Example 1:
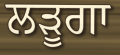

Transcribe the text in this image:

ਲੜੂਗਾ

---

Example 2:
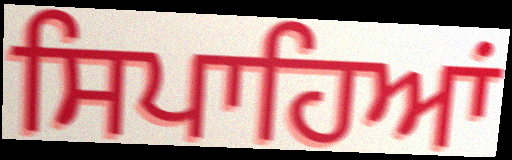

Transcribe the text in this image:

ਸਿਪਾਹਿਆਂ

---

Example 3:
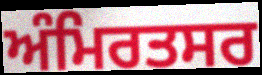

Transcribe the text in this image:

ਅੰਮਿਰਤਸਰ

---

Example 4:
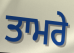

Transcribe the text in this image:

ਤਾਮਰੇ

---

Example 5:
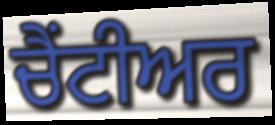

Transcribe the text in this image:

ਚੈਂਟੀਅਰ